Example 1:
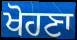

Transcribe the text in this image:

ਖੋਹਣਾ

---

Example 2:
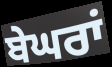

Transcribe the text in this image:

ਬੇਘਰਾਂ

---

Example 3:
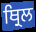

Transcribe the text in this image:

ਥ੍ਰਿਲ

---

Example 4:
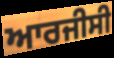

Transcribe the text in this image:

ਆਰਜੀਸੀ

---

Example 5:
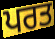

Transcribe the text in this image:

ਪਰਤ